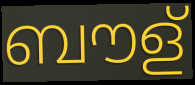
ബൗള്